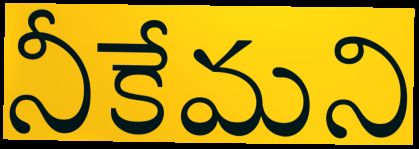
నీకేమని